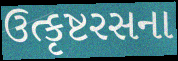
ઉત્કૃષ્ટરસના